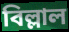
বিল্লাল